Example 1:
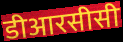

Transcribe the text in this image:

डीआरसीसी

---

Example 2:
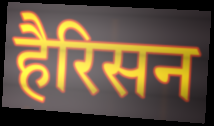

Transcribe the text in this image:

हैरिसन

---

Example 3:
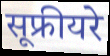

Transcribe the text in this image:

सूफ्रीयरे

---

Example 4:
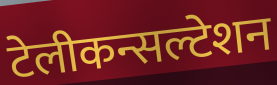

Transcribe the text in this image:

टेलीकन्सल्टेशन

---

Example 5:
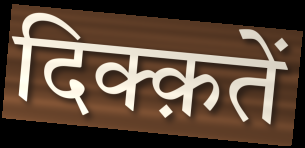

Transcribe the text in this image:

दिक्क़तें